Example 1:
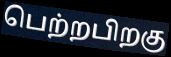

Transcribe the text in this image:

பெற்றபிறகு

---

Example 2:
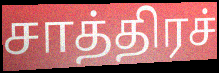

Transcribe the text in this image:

சாத்திரச்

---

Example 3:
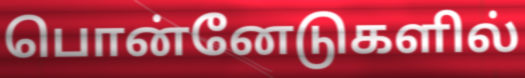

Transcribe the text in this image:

பொன்னேடுகளில்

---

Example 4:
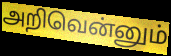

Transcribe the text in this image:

அறிவென்னும்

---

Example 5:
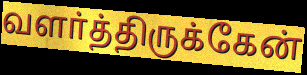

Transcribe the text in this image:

வளர்த்திருக்கேன்